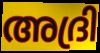
അദ്രി